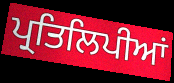
ਪ੍ਰਤਿਲਿਪੀਆਂ